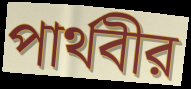
পার্থবীর